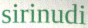
sirinudi